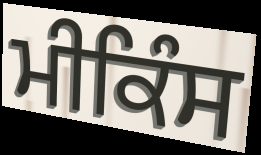
ਮੀਕਿੰਸ